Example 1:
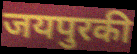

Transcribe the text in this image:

जयपुरकी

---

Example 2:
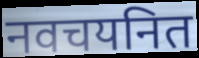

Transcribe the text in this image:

नवचयनित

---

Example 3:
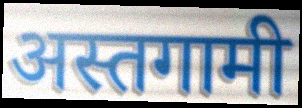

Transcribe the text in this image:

अस्तगामी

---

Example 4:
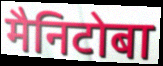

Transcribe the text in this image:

मैनिटोबा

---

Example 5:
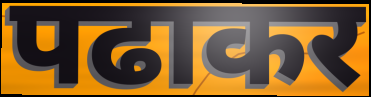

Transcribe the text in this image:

पढाकर